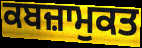
ਕਬਜ਼ਾਮੁਕਤ